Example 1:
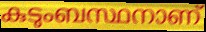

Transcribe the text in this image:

കുടുംബസ്ഥനാണ്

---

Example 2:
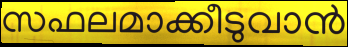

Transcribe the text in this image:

സഫലമാക്കീടുവാൻ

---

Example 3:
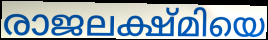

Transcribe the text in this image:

രാജലക്ഷ്മിയെ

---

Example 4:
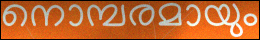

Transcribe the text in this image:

നൊമ്പരമായും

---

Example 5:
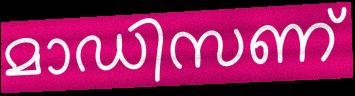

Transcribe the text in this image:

മാഡിസണ്